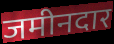
जमीनदार